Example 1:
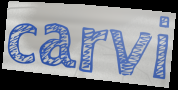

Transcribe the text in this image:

carvi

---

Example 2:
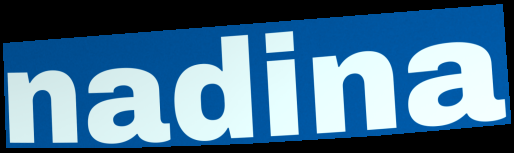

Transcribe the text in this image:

nadina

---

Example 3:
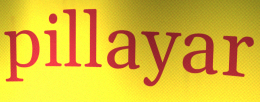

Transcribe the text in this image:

pillayar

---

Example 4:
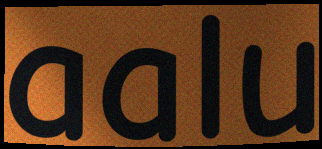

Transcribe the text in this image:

aalu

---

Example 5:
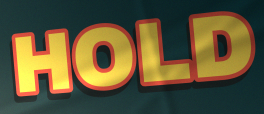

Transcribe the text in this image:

HOLD